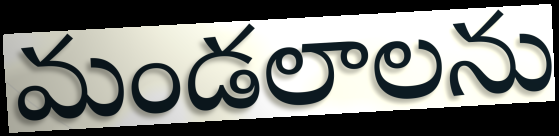
మండలాలను